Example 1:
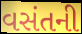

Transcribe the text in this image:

વસંતની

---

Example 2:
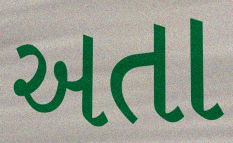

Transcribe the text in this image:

અતા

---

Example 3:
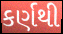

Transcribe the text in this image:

કર્ણથી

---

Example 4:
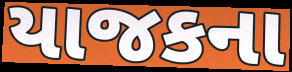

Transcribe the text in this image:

યાજકના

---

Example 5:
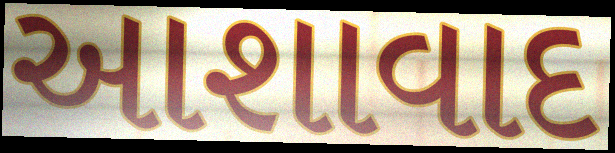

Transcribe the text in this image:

આશાવાદ